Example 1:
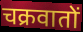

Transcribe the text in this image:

चक्रवातों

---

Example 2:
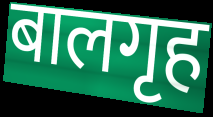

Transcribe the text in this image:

बालगृह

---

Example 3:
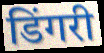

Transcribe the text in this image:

डिंगरी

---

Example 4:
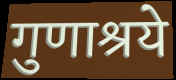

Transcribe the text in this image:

गुणाश्रये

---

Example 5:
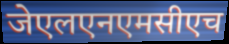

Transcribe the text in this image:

जेएलएनएमसीएच